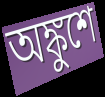
অঙ্কুশে